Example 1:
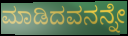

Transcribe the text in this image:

ಮಾಡಿದವನನ್ನೇ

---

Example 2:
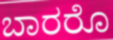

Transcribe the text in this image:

ಬಾರರೊ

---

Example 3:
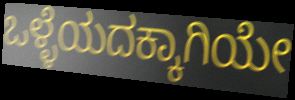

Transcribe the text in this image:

ಒಳ್ಳೆಯದಕ್ಕಾಗಿಯೇ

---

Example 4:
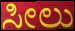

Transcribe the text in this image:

ಸೀಲು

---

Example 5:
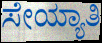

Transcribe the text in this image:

ಸೇಯ್ಯಾತಿ